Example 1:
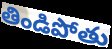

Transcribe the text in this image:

తిండిపోతు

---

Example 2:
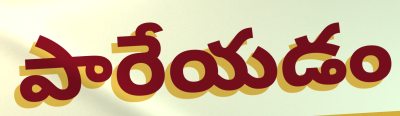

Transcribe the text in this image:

పారేయడం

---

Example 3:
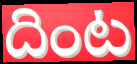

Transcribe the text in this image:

దింట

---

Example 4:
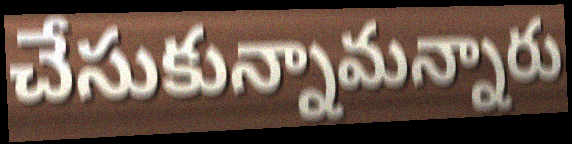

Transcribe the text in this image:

చేసుకున్నామన్నారు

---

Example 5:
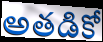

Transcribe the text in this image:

అతడికో